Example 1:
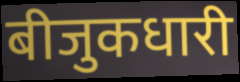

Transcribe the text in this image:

बीजुकधारी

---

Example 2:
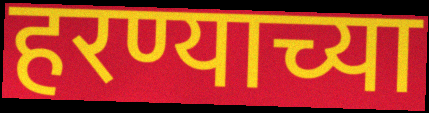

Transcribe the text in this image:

हरण्याच्या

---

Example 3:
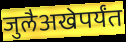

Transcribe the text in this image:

जुलैअखेपर्यंत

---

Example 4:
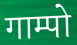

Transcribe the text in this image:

गाम्पो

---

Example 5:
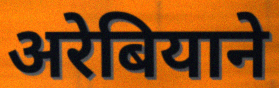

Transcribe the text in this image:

अरेबियाने